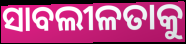
ସାବଲୀଳତାକୁ